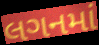
લગનમાં